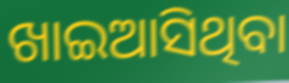
ଖାଇଆସିଥିବା